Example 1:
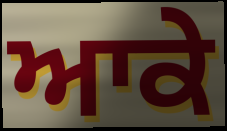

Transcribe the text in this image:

ਆਕੇ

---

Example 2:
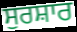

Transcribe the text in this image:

ਸੁਰਸ਼ਾਰ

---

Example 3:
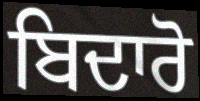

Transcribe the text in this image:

ਬਿਦਾਰੋ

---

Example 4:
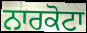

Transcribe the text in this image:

ਨਾਰਕੋਟਾ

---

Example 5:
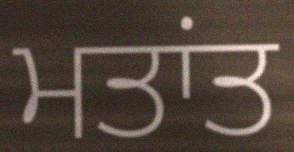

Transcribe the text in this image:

ਮਤਾਂਤ